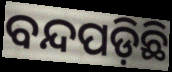
ବନ୍ଦପଡ଼ିଛି